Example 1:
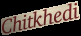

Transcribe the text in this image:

Chitkhedi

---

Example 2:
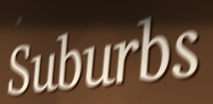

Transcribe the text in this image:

Suburbs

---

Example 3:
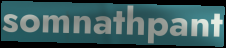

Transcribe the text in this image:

somnathpant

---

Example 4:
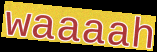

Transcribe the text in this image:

waaaah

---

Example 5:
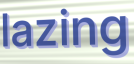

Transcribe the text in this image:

lazing